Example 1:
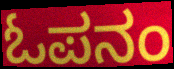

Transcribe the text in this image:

ಓಪನಂ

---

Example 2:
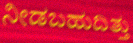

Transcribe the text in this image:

ನೀಡಬಹುದಿತ್ತು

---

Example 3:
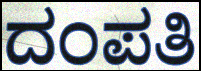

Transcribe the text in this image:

ದಂಪತಿ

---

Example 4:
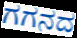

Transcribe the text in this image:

ಗಗನದ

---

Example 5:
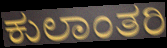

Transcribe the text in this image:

ಕುಲಾಂತರಿ